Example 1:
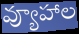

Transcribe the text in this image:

వ్యూహాల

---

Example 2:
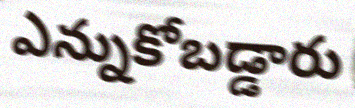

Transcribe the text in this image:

ఎన్నుకోబడ్డారు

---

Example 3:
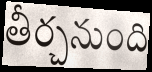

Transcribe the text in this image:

తీర్చనుంది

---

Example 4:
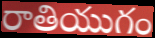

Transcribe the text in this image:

రాతియుగం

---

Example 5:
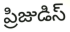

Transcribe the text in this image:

ప్రిజుడిస్